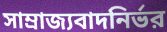
সাম্রাজ্যবাদনির্ভর